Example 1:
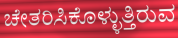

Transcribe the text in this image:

ಚೇತರಿಸಿಕೊಳ್ಳುತ್ತಿರುವ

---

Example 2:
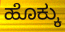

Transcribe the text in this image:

ಹೊಕ್ಕು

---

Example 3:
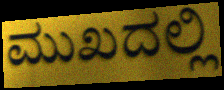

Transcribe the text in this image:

ಮುಖದಲ್ಲಿ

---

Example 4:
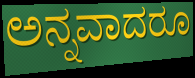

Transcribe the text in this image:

ಅನ್ನವಾದರೂ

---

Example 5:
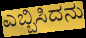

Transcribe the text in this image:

ಎಬ್ಬಿಸಿದನು